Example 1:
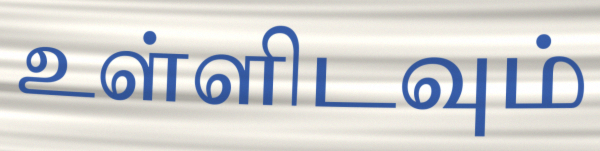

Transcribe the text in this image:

உள்ளிடவும்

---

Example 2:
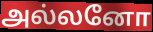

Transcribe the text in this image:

அல்லனோ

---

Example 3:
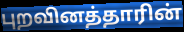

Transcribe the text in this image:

புறவினத்தாரின்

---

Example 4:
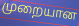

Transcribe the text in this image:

முறையான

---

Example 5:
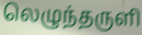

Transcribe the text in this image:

லெழுந்தருளி